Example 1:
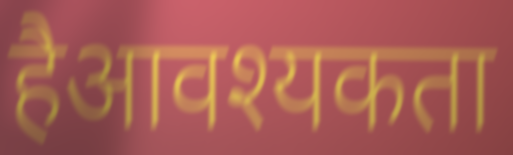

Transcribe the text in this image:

हैआवश्यकता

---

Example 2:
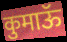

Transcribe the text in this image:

कुमाऊॅ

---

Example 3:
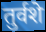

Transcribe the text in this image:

तुर्वशे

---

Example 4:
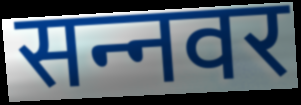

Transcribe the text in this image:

सन्नवर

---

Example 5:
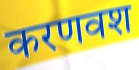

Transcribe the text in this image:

करणवश